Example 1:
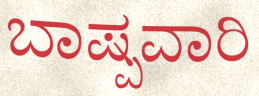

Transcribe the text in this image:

ಬಾಷ್ಪವಾರಿ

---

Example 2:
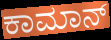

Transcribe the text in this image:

ಕಾಮಾನ್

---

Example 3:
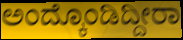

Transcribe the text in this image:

ಅಂದ್ಕೊಂಡಿದ್ದೀರಾ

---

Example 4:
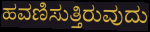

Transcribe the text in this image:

ಹವಣಿಸುತ್ತಿರುವುದು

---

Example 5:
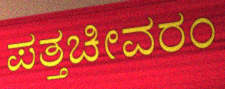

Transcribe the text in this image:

ಪತ್ತಚೀವರಂ